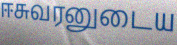
ஈசுவரனுடைய